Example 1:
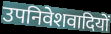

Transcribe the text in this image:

उपनिवेशवादियों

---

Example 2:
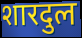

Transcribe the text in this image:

शारदुल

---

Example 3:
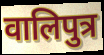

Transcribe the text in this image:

वालिपुत्र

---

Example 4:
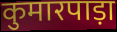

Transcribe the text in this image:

कुमारपाड़ा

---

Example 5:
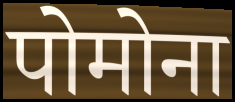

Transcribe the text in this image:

पोमोना